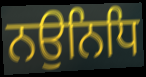
ਨਉਨਿਧਿ